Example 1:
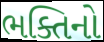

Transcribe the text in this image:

ભક્તિનો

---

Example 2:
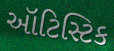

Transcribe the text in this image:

ઑટિસ્ટિક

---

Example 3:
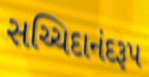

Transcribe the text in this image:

સચ્ચિદાનંદરૂપ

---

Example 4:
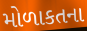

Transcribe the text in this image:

મોળાકતના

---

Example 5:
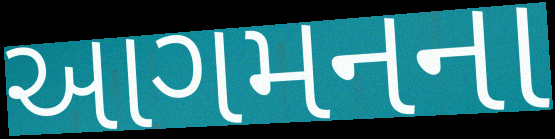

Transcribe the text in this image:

આગમનના